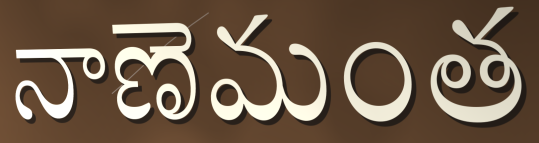
నాణెమంత